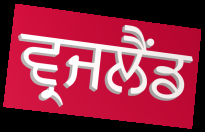
ਵ੍ਰਜਲੈਂਡ